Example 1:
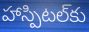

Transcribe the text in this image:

హాస్పిటల్‌కు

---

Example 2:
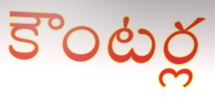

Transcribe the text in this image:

కౌంటర్ల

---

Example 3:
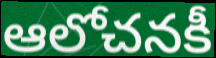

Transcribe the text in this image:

ఆలోచనకీ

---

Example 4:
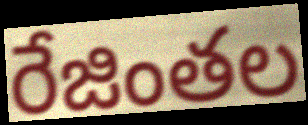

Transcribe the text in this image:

రేజింతల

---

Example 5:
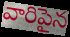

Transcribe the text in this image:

వారిపైన